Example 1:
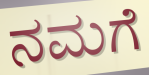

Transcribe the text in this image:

ನಮಗೆ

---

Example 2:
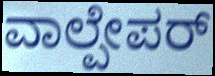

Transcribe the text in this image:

ವಾಲ್ಪೇಪರ್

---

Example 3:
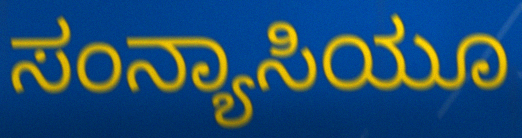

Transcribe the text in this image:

ಸಂನ್ಯಾಸಿಯೂ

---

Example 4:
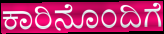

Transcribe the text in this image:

ಕಾರಿನೊಂದಿಗೆ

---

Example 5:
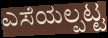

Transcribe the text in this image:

ಎಸೆಯಲ್ಪಟ್ಟ